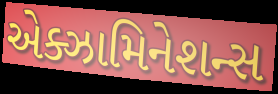
એક્ઝામિનેશન્સ